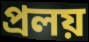
প্রলয়